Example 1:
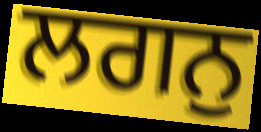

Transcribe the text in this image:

ਲਗਨੁ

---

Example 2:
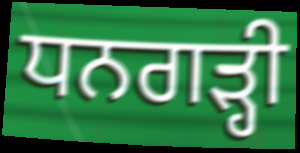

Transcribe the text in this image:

ਧਨਗੜ੍ਹੀ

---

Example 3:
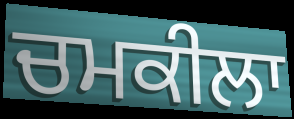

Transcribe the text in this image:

ਚਮਕੀਲਾ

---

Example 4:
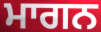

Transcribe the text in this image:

ਮਾਗਨ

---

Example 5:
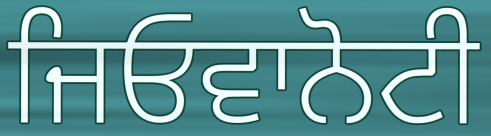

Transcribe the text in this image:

ਜਿਓਵਾਨੋਟੀ